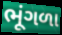
ભૂંગળા